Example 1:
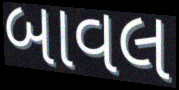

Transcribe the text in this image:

બાવલ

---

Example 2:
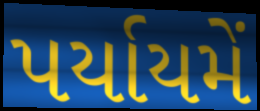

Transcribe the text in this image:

પર્યાયમેં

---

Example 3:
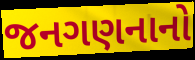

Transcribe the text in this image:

જનગણનાનો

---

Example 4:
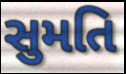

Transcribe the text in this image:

સુમતિ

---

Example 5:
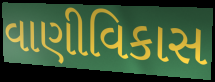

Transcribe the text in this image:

વાણીવિકાસ